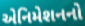
એનિમેશનનો